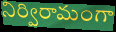
నిర్విరామంగా